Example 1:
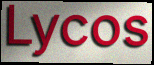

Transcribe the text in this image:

Lycos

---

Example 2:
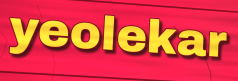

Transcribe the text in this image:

yeolekar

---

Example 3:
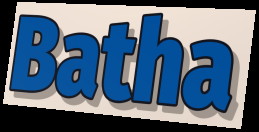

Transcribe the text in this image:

Batha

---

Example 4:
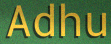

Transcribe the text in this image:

Adhu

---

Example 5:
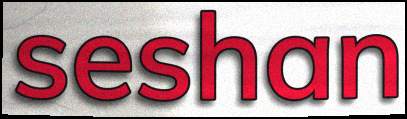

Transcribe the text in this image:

seshan